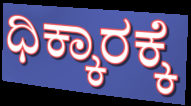
ಧಿಕ್ಕಾರಕ್ಕೆ